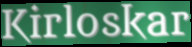
Kirloskar